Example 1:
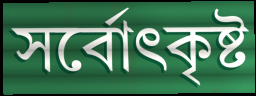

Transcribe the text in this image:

সৰ্বোৎকৃষ্ট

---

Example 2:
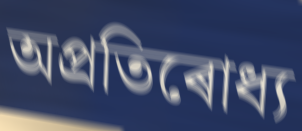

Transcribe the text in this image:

অপ্ৰতিৰোধ্য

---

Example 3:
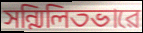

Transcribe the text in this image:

সন্মিলিতভাৱে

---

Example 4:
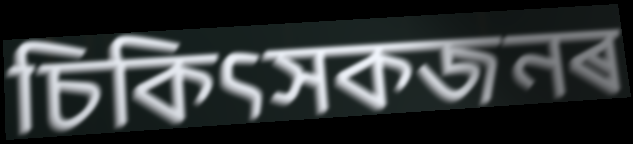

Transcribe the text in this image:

চিকিৎসকজনৰ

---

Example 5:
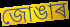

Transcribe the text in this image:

জোঙাৰ